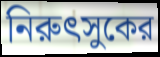
নিরুৎসুকের